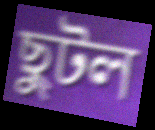
ছুটল